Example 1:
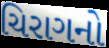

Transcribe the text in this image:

ચિરાગનો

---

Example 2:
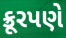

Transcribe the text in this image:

ક્રૂરપણે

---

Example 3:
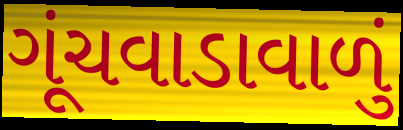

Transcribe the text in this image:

ગૂંચવાડાવાળું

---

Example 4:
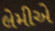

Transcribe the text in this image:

લેમીએ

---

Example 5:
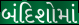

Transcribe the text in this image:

બંદિશોમાં